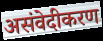
असंवेदीकरण